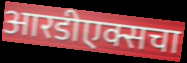
आरडीएक्सचा